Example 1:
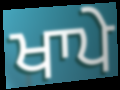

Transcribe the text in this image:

ਖਾਪੇ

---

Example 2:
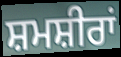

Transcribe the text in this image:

ਸ਼ਮਸ਼ੀਰਾਂ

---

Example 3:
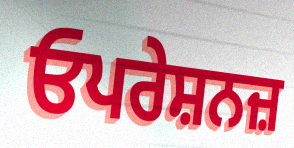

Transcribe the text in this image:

ਓਪਰੇਸ਼ਨਜ਼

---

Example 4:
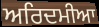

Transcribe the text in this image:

ਅਰਿਦਮੀਆ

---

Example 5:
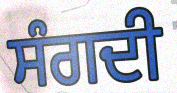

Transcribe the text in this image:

ਸੰਗਦੀ